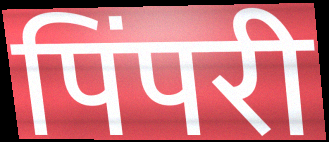
पिंपरी